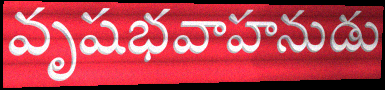
వృషభవాహనుడు